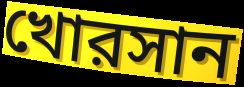
খোরসান